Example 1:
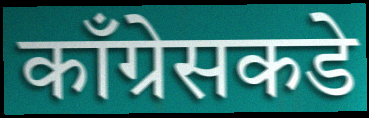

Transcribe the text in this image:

काँग्रेसकडे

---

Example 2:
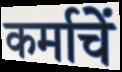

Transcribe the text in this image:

कर्माचें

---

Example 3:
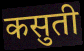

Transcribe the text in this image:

कसुती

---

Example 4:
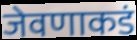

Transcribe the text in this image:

जेवणाकडं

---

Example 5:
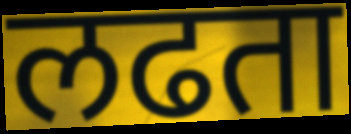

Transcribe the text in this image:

लढता